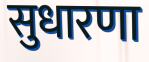
सुधारणा